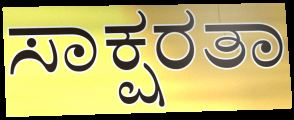
ಸಾಕ್ಷರತಾ